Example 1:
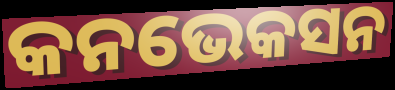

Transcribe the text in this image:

କନଭେକସନ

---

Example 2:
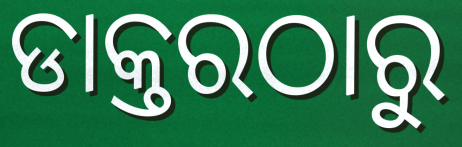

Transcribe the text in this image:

ଡାକ୍ତରଠାରୁ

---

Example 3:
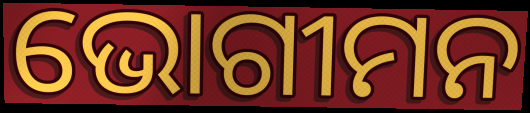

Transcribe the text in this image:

ଭୋଗୀମନ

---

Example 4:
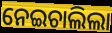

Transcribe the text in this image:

ନେଇଚାଲିଲା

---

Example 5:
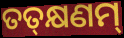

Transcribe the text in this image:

ତତ୍‌କ୍ଷଣମ୍